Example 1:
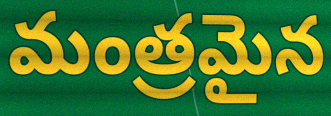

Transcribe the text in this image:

మంత్రమైన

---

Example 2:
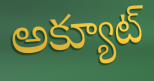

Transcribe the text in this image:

అక్యూట్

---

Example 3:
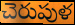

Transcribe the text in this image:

చెరుపుళ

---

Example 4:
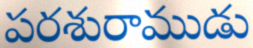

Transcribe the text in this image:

పరశురాముడు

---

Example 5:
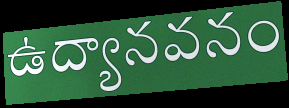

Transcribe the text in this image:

ఉద్యానవనం